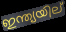
ഇന്ത്യയില്